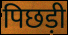
पिछड़ी